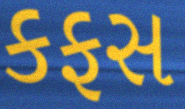
કફસ